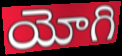
యోగి